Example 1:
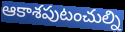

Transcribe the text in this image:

ఆకాశపుటంచుల్ని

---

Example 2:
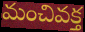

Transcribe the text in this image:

మంచివక్త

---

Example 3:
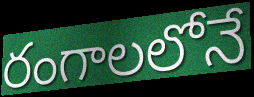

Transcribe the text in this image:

రంగాలలోనే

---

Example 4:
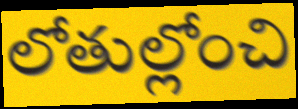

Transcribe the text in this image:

లోతుల్లోంచి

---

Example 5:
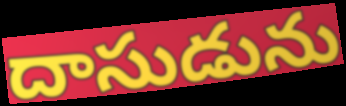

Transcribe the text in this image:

దాసుడును